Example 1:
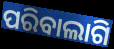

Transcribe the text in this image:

ପରିବାଲାଗି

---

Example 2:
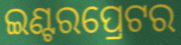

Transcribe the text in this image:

ଇଣ୍ଟରପ୍ରେଟର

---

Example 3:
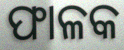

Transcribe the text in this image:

ଫାଳକ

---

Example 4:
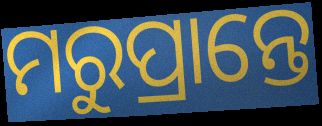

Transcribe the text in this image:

ମରୁପ୍ରାନ୍ତେ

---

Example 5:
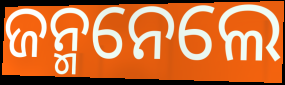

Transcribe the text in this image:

ଜନ୍ମନେଲେ